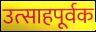
उत्‍साहपूर्वक